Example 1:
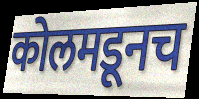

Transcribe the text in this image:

कोलमडूनच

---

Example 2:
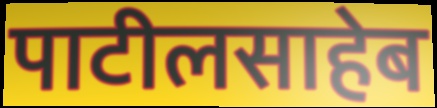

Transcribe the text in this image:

पाटीलसाहेब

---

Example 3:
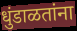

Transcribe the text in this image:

धुंडाळतांना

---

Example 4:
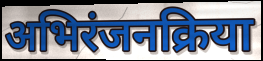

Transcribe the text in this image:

अभिरंजनक्रिया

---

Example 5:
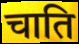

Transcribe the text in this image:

चाति